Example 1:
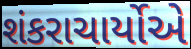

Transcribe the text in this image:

શંકરાચાર્યોએ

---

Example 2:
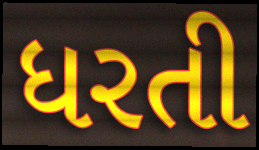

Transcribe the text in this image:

ધરતી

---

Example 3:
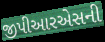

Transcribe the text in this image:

જીપીઆરએસની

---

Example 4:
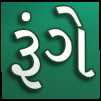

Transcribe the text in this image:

રૂંગે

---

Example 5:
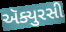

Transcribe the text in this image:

ઍક્યુરસી